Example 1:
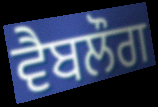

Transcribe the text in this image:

ਵੈਬਲੌਗ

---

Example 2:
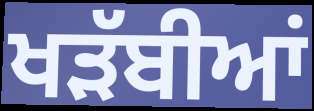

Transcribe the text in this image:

ਖੜੱਬੀਆਂ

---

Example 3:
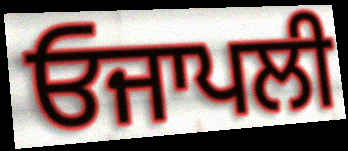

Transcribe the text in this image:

ਓਜਾਪਲੀ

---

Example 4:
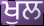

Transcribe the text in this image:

ਖੁਲ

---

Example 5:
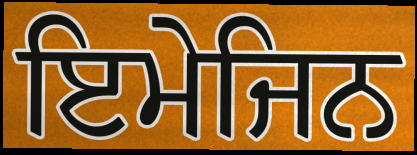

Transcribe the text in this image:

ਇਮੇਜਿਨ